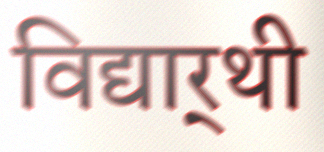
विद्यार्थी